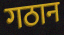
गठान